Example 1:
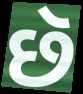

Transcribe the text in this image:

છૅ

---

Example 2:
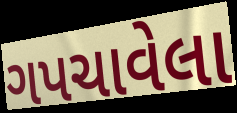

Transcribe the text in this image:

ગપચાવેલા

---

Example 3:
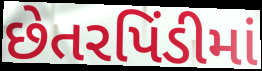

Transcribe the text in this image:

છેતરપિંડીમાં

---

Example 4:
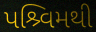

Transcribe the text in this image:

પશ્ર્વિમથી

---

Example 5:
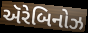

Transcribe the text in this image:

ઍરેબિનોઝ